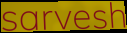
sarvesh